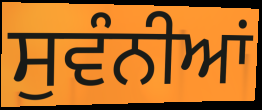
ਸੁਵੰਨੀਆਂ